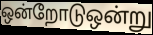
ஒன்றோடுஒன்று